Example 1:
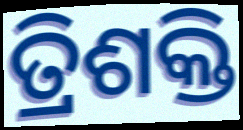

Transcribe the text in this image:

ତ୍ରିଶକ୍ତି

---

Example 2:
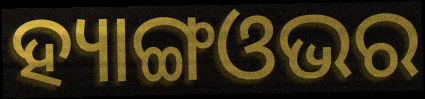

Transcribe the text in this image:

ହ୍ୟାଙ୍ଗଓଭର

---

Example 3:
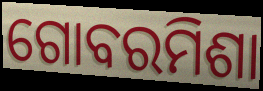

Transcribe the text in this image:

ଗୋବରମିଶା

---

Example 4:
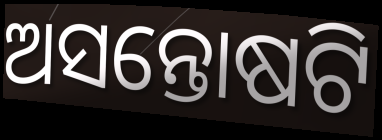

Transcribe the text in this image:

ଅସନ୍ତୋଷଟି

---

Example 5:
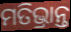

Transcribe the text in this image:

ମତିଭ୍ରାନ୍ତ